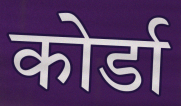
कोर्डा